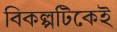
বিকল্পটিকেই